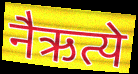
नैऋत्ये